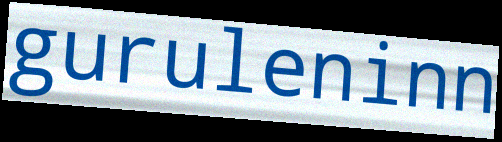
guruleninn